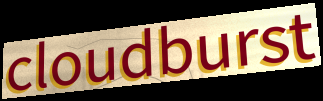
cloudburst